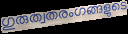
ഗുരുത്വതരംഗങ്ങളുടെ